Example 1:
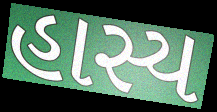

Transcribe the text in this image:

હાસ્ય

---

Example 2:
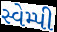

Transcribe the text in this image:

સ્વેમ્પી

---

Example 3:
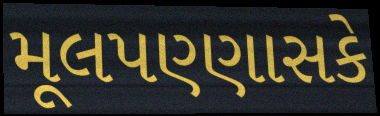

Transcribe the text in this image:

મૂલપણ્ણાસકે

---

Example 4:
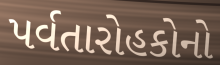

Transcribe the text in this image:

પર્વતારોહકોનો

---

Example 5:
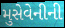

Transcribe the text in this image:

મુસેવેનીની